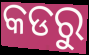
କଡରୁ